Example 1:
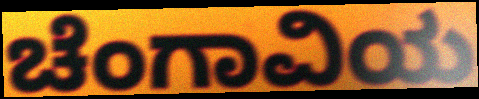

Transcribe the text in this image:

ಚೆಂಗಾವಿಯ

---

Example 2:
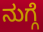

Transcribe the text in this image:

ನುಗ್ಗೆ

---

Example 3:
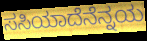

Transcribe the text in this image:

ಸಸಿಯಾದೆನೆನ್ನಯ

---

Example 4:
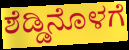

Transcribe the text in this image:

ಶೆಡ್ಡಿನೊಳಗೆ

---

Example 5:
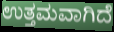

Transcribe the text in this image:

ಉತ್ತಮವಾಗಿದೆ